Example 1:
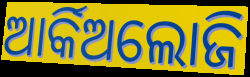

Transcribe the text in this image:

ଆର୍କିଅଲୋଜି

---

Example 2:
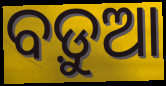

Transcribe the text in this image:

ବଡ଼ୁଆ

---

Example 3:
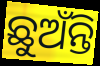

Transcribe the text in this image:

ଛୁଅଁନ୍ତି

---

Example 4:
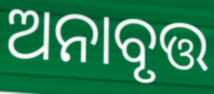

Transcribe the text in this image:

ଅନାବୃତ୍ତ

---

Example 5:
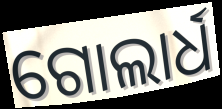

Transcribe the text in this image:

ଗୋଲାର୍ଧ